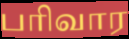
பரிவார